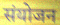
संयोजन